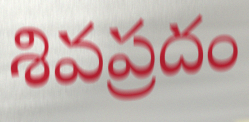
శివప్రదం